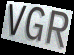
VGR